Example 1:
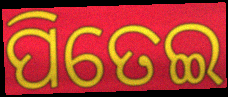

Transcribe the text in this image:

ପିତେଇ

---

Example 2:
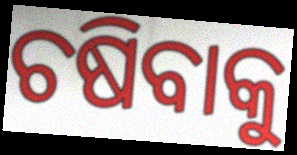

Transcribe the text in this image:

ଚଷିବାକୁ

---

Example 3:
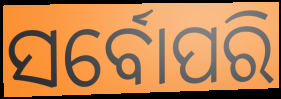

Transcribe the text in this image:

ସର୍ବୋପରି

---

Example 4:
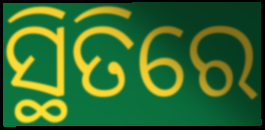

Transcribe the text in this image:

ସ୍ଥିତିରେ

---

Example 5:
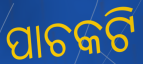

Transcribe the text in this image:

ପାଚକଟି